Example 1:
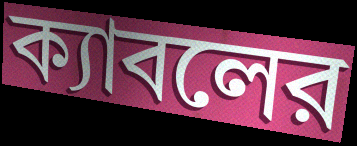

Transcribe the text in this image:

ক্যাবলের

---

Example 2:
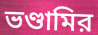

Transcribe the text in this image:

ভণ্ডামির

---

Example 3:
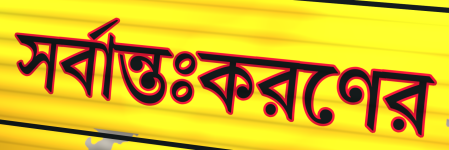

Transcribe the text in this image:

সর্বান্তঃকরণের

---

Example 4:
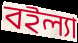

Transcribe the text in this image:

বইল্যা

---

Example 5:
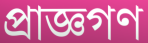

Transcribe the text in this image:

প্রাজ্ঞগণ